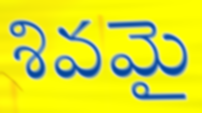
శివమై